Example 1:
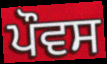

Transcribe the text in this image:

ਪੌਵਸ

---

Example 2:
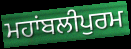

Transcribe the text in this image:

ਮਹਾਂਬਲੀਪੁਰਮ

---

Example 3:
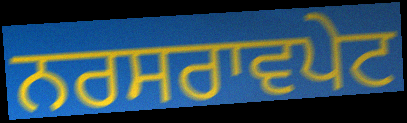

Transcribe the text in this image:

ਨਰਸਰਾਵਪੇਟ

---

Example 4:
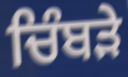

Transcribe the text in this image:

ਚਿੰਬਡ਼ੇ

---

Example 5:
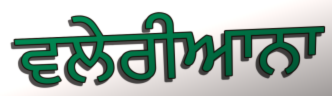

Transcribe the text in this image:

ਵਲੇਰੀਆਨਾ